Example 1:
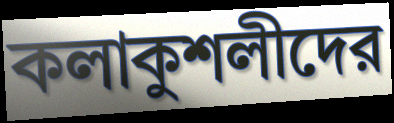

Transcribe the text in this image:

কলাকুশলীদের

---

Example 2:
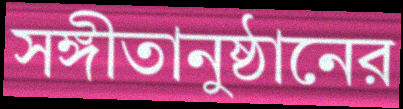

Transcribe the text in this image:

সঙ্গীতানুষ্ঠানের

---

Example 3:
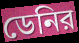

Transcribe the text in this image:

ডেনির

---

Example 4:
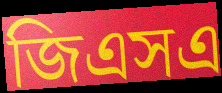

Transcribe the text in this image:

জিএসএ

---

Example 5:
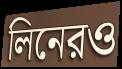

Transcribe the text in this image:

লিনেরও